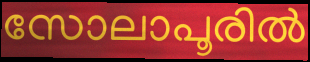
സോലാപൂരിൽ